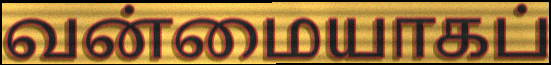
வன்மையாகப்